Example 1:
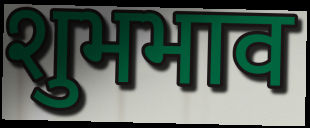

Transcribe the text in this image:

शुभभाव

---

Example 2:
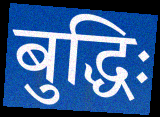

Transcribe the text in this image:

बुद्धिः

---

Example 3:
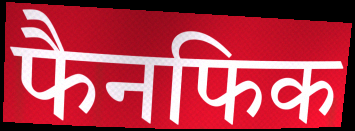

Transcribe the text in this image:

फैनफिक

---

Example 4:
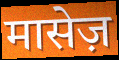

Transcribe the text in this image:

मासेज़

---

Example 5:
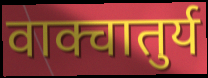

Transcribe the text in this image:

वाक्चातुर्य